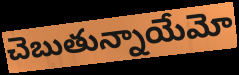
చెబుతున్నాయేమో